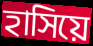
হাসিয়ে